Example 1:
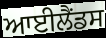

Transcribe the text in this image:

ਆਈਲੈਂਡਸ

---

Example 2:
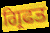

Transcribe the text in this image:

ਗ੍ਰਿਫਤ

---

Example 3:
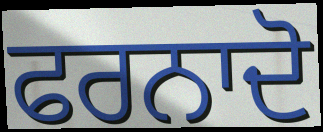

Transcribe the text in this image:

ਫਰਨਾਦੋ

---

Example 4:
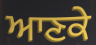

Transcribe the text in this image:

ਆਣਕੇ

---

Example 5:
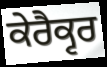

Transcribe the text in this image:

ਕੇਰੈਕ੍ਟਰ